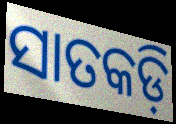
ସାତକଡ଼ି